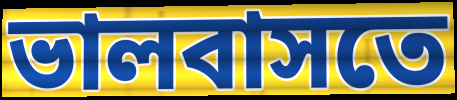
ভালবাসতে